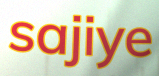
sajiye